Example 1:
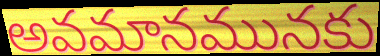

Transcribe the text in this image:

అవమానమునకు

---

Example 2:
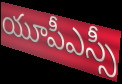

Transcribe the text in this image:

యూపీఎస్సీ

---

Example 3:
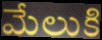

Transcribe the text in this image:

మేలుకి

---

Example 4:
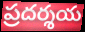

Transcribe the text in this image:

ప్రదర్శయ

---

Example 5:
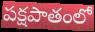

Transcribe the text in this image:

పక్షపాతంలో